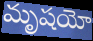
మృషయో